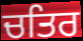
ਚਤਿਰ